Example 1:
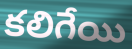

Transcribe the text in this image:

కలిగేయి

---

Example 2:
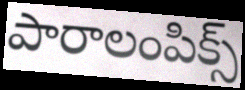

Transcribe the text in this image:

పారాలంపిక్స్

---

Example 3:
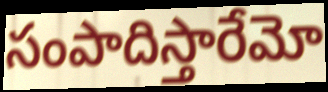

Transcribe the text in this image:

సంపాదిస్తారేమో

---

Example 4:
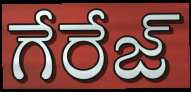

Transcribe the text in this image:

గేరేజ్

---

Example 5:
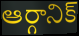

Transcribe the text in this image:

ఆర్గానిక్